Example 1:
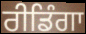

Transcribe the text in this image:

ਰੀਡਿੰਗਾ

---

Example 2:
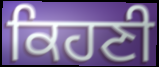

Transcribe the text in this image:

ਕਿਹਣੀ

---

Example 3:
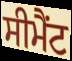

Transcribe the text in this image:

ਸੀਮੈਂਟ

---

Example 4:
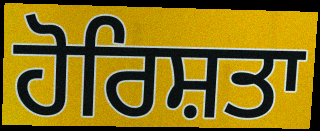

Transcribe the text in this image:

ਹੋਰਿਸ਼ਤਾ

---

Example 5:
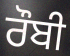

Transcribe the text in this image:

ਰੌਬੀ